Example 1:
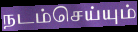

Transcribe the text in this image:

நடம்செய்யும்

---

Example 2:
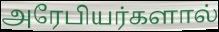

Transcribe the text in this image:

அரேபியர்களால்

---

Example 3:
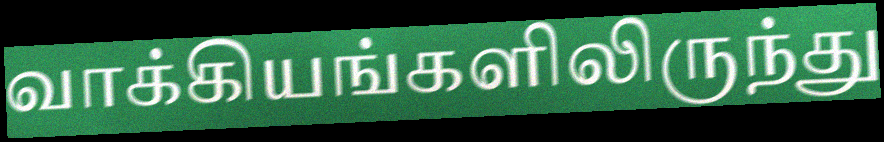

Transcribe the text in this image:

வாக்கியங்களிலிருந்து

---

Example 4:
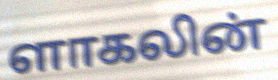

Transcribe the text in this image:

ளாகலின்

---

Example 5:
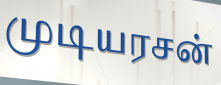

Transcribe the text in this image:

முடியரசன்